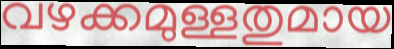
വഴക്കമുള്ളതുമായ